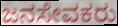
ಜನಸೇವಕರು